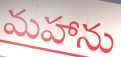
మహాను